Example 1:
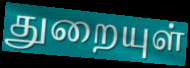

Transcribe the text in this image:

துறையுள்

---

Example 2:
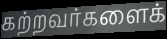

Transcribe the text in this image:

கற்றவர்களைக்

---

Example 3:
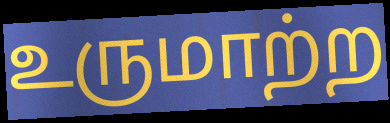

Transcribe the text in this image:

உருமாற்ற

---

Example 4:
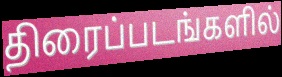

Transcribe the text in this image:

திரைப்படங்களில்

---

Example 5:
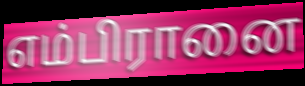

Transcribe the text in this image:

எம்பிரானை